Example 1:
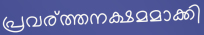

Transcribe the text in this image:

പ്രവര്ത്തനക്ഷമമാക്കി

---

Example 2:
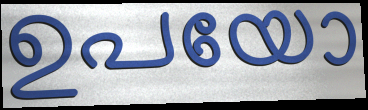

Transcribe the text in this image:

ഉപയോ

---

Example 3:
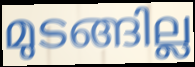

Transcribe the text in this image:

മുടങ്ങില്ല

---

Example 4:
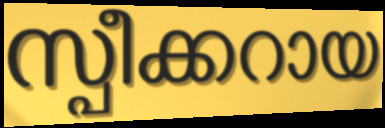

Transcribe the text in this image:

സ്പീക്കറായ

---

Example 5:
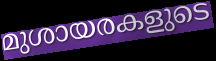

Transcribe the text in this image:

മുശായരകളുടെ